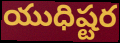
యుధిష్టర